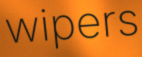
wipers